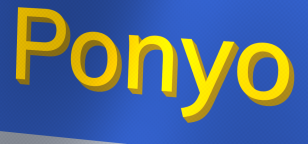
Ponyo